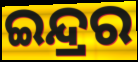
ଇନ୍ଦ୍ରର